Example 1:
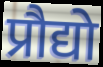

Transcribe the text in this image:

प्रौद्यो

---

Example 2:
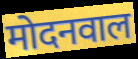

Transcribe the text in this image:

मोदनवाल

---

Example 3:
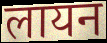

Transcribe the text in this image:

लायन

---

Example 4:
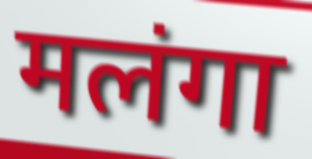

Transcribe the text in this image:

मलंगा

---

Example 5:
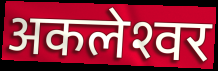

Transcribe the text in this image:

अकलेश्वर